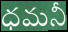
ధమనీ